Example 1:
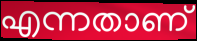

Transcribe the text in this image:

എന്നതാണ്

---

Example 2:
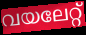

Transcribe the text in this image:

വയലേറ്റ്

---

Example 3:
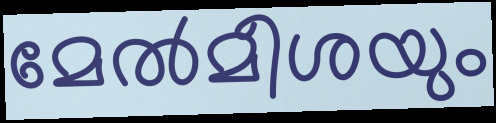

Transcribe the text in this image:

മേൽമീശയും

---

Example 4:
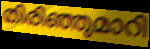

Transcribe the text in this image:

തിരിഞ്ഞുമാറി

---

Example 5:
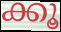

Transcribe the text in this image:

ക്കൂ